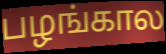
பழங்கால